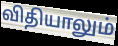
விதியாலும்